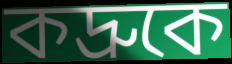
কদ্রুকে